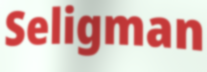
Seligman